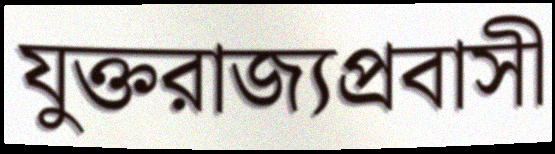
যুক্তরাজ্যপ্রবাসী